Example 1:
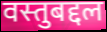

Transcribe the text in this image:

वस्तुबद्दल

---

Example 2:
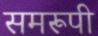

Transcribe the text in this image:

समरूपी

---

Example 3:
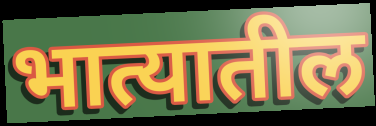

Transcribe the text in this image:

भात्यातील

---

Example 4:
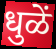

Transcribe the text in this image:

धुळें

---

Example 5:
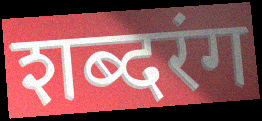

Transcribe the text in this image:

शब्दरंग